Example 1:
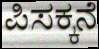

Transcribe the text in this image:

ಪಿಸಕ್ಕನೆ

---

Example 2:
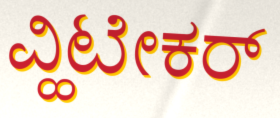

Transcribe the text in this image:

ವ್ಹಿಟೇಕರ್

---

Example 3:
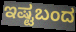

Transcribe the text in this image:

ಇಷ್ಟಬಂದ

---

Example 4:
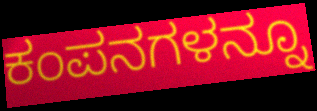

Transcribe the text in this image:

ಕಂಪನಗಳನ್ನೂ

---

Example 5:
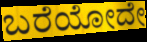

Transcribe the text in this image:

ಬರೆಯೋದೇ